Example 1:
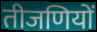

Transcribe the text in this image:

तीजणियों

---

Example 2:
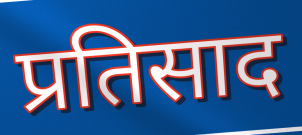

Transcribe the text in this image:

प्रतिसाद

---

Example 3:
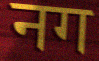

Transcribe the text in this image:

नग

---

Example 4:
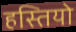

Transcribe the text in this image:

हस्तियो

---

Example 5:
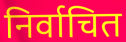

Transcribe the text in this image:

निर्वाचित